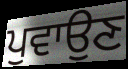
ਪੁਵਾਉਣ